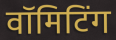
वॉमिटिंग